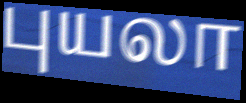
புயலா